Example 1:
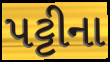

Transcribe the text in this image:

પટ્ટીના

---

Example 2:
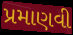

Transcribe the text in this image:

પ્રમાણવી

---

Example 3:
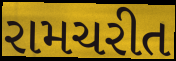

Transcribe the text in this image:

રામચરીત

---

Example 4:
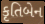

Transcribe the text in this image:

કૃતિબેન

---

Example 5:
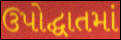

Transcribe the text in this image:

ઉપોદ્ઘાતમાં